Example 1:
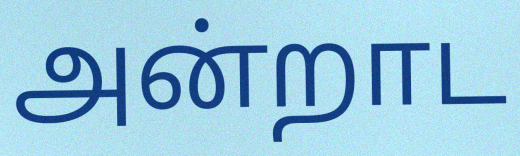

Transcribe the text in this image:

அன்றாட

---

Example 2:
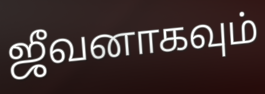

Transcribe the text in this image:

ஜீவனாகவும்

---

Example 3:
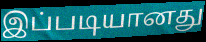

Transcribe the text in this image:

இப்படியானது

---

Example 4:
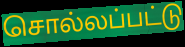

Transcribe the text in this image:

சொல்லப்பட்டு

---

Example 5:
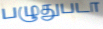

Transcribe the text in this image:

பழுதுபடா